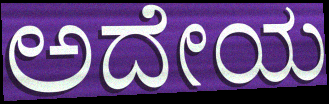
ಅದೇಯ